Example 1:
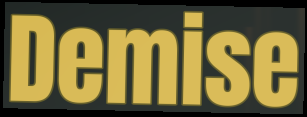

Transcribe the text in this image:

Demise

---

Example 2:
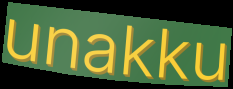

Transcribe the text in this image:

unakku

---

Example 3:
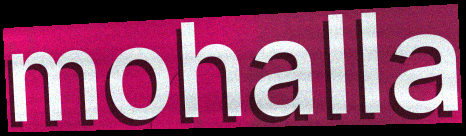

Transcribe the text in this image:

mohalla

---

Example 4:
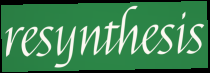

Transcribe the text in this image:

resynthesis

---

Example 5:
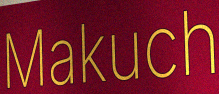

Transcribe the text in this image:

Makuch